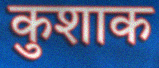
कुशाक